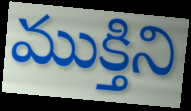
ముక్తిని